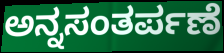
ಅನ್ನಸಂತರ್ಪಣೆ